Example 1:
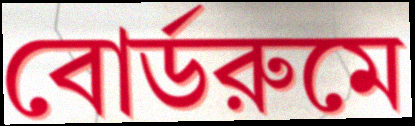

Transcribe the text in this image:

বোর্ডরুমে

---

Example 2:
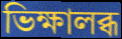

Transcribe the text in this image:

ভিক্ষালব্ধ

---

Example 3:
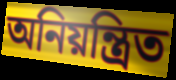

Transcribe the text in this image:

অনিয়ন্ত্রিত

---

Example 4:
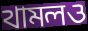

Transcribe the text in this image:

থামলও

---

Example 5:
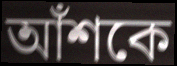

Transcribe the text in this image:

আঁশকে